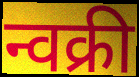
न्वक्री